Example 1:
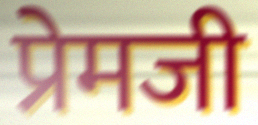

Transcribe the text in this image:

प्रेमजी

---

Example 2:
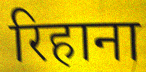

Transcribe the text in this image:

रिहाना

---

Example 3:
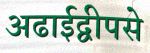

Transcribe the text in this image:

अढाईद्वीपसे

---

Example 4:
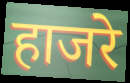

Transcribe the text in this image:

हाजरे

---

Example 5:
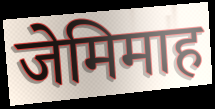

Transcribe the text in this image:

जेमिमाह